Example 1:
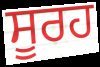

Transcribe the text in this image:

ਸੂਰਹ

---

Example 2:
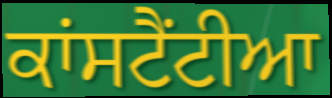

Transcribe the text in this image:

ਕਾਂਸਟੈਂਟੀਆ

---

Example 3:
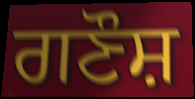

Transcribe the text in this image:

ਗਣੌਸ਼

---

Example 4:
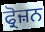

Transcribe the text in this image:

ਫ੍ਰੋਜ਼ਨ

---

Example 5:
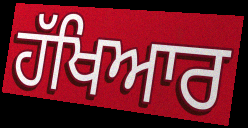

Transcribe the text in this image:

ਹੱਖਿਆਰ